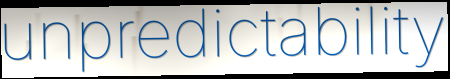
unpredictability